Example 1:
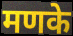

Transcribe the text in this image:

मणके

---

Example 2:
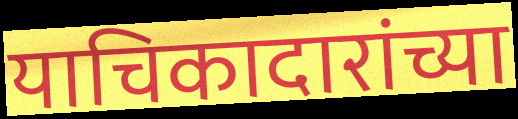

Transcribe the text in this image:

याचिकादारांच्या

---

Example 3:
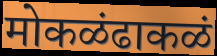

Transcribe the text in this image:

मोकळंढाकळं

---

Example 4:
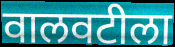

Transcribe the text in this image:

वालवटीला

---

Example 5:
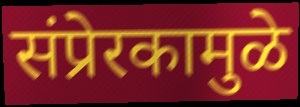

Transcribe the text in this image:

संप्रेरकामुळे